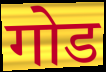
गोड